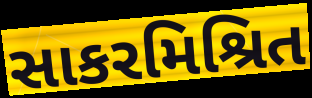
સાકરમિશ્રિત